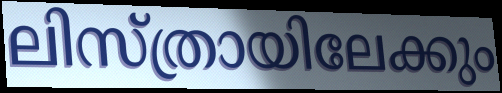
ലിസ്ത്രായിലേക്കും